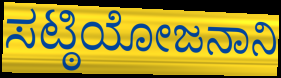
ಸಟ್ಠಿಯೋಜನಾನಿ